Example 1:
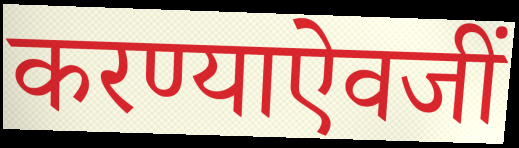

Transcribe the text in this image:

करण्याऐवजीं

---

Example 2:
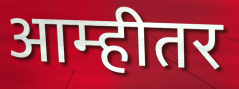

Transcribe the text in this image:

आम्हीतर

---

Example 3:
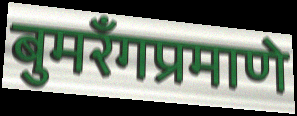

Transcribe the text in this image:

बुमरँगप्रमाणे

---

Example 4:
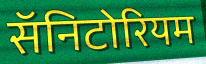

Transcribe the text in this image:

सॅनिटोरियम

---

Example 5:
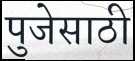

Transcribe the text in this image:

पुजेसाठी